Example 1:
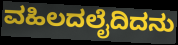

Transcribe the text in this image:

ವಹಿಲದಲೈದಿದನು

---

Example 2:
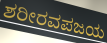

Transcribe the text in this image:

ಶರೀರವಪಜಯ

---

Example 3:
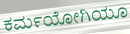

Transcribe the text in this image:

ಕರ್ಮಯೋಗಿಯೂ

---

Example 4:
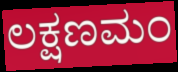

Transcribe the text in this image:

ಲಕ್ಷಣಮಂ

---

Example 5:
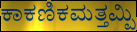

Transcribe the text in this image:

ಕಾಕಣಿಕಮತ್ತಮ್ಪಿ